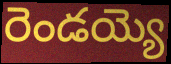
రెండయ్యె